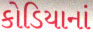
કોડિયાનાં